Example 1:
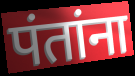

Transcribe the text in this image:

पंतांना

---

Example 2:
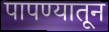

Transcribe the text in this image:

पापण्यातून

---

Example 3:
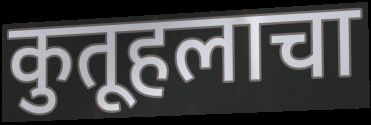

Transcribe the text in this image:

कुतूहलाचा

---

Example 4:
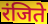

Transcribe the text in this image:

रंजिते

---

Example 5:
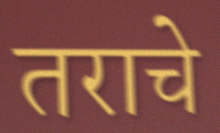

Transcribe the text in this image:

तराचे